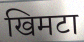
खिमटा